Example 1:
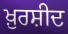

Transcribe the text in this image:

ਖ਼ੁਰਸ਼ੀਦ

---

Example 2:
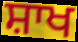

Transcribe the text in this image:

ਸ਼ਾਖ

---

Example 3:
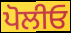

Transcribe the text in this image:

ਪੋਲੀਓ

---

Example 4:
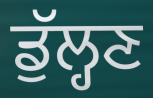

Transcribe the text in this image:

ਡੁੱਲ੍ਹਣ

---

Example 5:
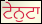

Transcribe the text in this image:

ਟੇਨੁਟਾ